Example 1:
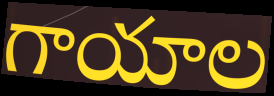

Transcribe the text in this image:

గాయాల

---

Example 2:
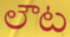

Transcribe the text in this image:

లౌట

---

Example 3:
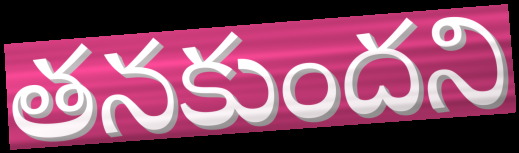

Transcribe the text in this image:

తనకుందని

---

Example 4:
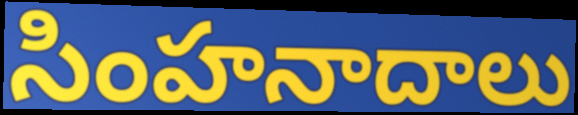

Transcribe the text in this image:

సింహనాదాలు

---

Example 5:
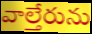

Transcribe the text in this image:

వాల్తేరును